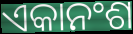
ଏକାନଂଶ